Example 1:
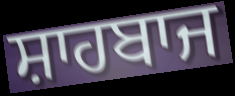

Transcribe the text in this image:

ਸ਼ਾਹਬਾਜ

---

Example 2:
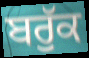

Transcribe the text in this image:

ਬਰੁੱਕ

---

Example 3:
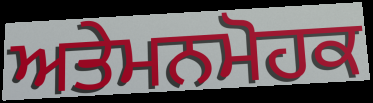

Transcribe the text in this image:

ਅਤੇਮਨਮੋਹਕ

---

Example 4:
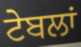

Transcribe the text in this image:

ਟੇਬਲਾਂ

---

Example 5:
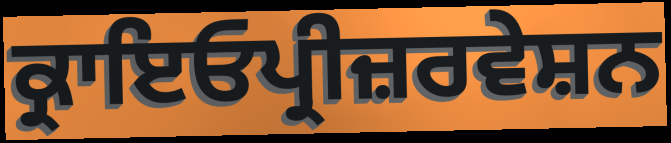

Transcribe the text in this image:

ਕ੍ਰਾਇਓਪ੍ਰੀਜ਼ਰਵੇਸ਼ਨ